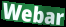
Webar